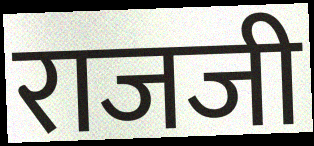
राजजी